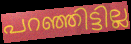
പറഞ്ഞിട്ടില്ല